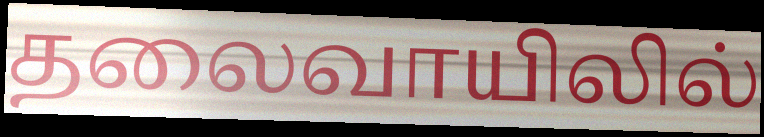
தலைவாயிலில்